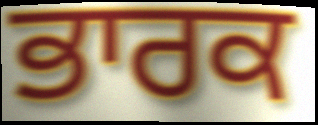
ਭਾਰਕ